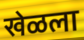
खेळला